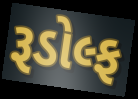
રૂડોલ્ફ